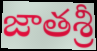
జాతశ్రీ